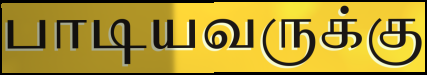
பாடியவருக்கு